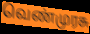
வெண்முரசு